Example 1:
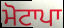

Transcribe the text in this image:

ਮੋਟਾਪਾ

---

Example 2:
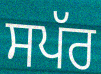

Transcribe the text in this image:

ਸਪੱਰ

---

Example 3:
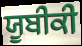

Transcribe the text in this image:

ਯੂਬੀਕੀ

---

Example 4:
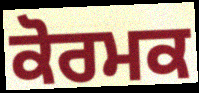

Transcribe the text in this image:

ਕੋਰਮਕ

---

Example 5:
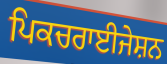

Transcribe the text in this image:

ਪਿਕਚਰਾਈਜੇਸ਼ਨ